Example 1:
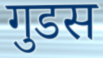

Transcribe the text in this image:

गुडस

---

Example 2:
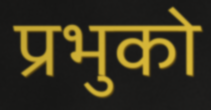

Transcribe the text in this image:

प्रभुको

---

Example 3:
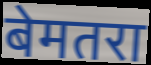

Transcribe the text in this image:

बेमतरा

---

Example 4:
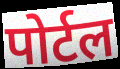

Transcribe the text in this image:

पोर्टल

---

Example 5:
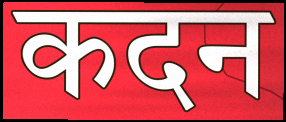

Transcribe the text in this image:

कदन